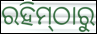
ରହିମ୍‌ଠାରୁ